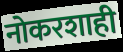
नोकरशाही